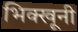
भिक्खूनी